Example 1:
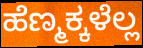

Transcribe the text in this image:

ಹೆಣ್ಮಕ್ಕಳೆಲ್ಲ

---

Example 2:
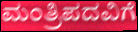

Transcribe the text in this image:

ಮಂತ್ರಿಪದವಿಗೆ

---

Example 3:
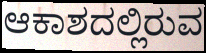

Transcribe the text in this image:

ಆಕಾಶದಲ್ಲಿರುವ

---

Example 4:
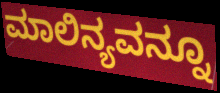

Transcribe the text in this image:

ಮಾಲಿನ್ಯವನ್ನೂ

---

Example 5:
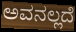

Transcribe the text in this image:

ಅವನಲ್ಲದೆ